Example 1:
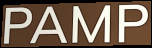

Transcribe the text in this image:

PAMP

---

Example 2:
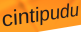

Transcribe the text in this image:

cintipudu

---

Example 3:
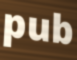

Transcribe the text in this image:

pub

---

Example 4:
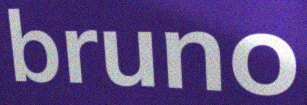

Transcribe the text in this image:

bruno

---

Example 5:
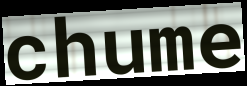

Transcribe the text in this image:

chume